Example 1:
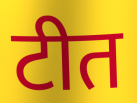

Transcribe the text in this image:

टीत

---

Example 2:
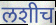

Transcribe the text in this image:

लशीच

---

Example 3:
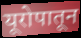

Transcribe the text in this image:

यूरोपातून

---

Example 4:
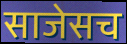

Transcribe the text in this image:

साजेसच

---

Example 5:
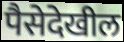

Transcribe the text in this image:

पैसेदेखील